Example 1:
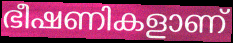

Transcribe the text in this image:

ഭീഷണികളാണ്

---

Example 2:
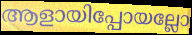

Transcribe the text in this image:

ആളായിപ്പോയല്ലോ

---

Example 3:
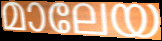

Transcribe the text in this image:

മാലേയ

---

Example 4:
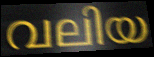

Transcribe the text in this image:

വലിയ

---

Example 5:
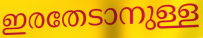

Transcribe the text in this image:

ഇരതേടാനുള്ള